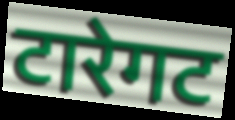
टारेगट